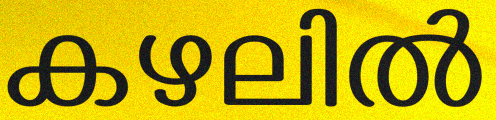
കഴലിൽ